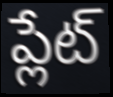
ప్లేట్